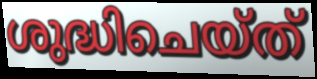
ശുദ്ധിചെയ്ത്